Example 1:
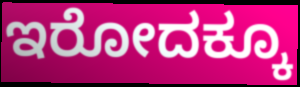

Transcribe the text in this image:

ಇರೋದಕ್ಕೂ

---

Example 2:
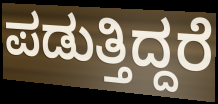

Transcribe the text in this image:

ಪಡುತ್ತಿದ್ದರೆ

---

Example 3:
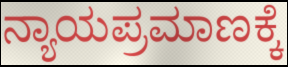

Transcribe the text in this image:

ನ್ಯಾಯಪ್ರಮಾಣಕ್ಕೆ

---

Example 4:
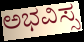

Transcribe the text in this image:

ಅಭವಿಸ್ಸ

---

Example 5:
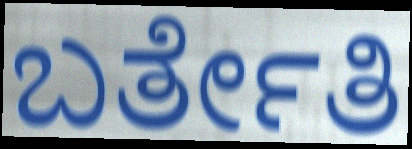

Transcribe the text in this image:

ಬರ್ತೇತಿ